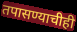
तपासण्याचीही